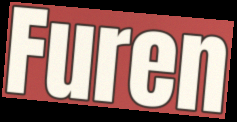
Furen